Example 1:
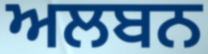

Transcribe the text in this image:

ਅਲਬਨ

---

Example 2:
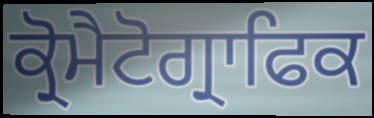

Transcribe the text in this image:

ਕ੍ਰੋਮੈਟੋਗ੍ਰਾਫਿਕ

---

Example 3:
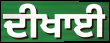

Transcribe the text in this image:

ਦੀਖਾਈ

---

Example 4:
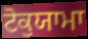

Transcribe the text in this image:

ਟੋਕੁਯਾਮਾ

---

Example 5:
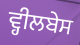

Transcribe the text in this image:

ਵ੍ਹੀਲਬੇਸ